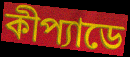
কীপ্যাডে